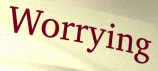
Worrying